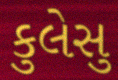
કુલેસુ